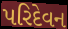
પરિદેવન